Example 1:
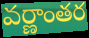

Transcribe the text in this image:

వర్ణాంతర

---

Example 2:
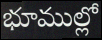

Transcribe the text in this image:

భూముల్లో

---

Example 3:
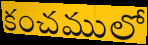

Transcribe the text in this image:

కంచములో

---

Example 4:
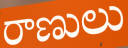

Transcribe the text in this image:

రాణులు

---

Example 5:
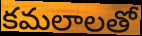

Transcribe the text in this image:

కమలాలతో